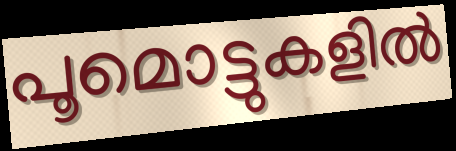
പൂമൊട്ടുകളിൽ